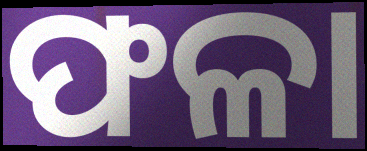
ଫଳା